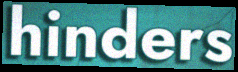
hinders